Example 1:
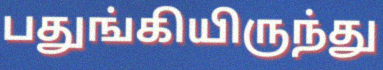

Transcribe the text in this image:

பதுங்கியிருந்து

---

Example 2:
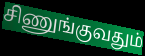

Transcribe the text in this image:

சிணுங்குவதும்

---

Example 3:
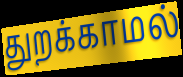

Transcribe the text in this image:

துறக்காமல்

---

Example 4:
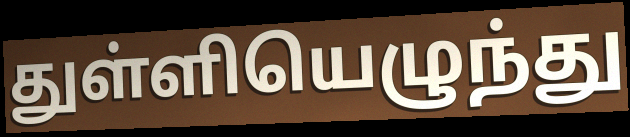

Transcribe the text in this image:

துள்ளியெழுந்து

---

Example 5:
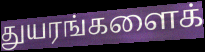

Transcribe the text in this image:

துயரங்களைக்